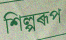
শিল্পৰূপ